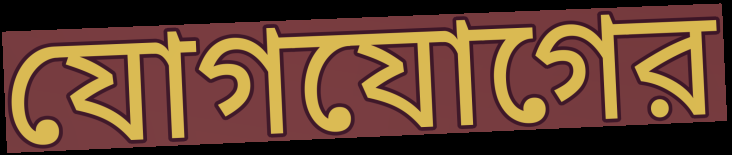
যোগযোগের